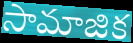
సామాజిక